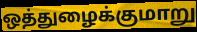
ஒத்துழைக்குமாறு